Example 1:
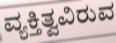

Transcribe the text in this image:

ವ್ಯಕ್ತಿತ್ವವಿರುವ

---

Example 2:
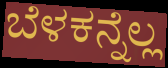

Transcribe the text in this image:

ಬೆಳಕನ್ನೆಲ್ಲ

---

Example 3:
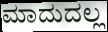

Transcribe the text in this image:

ಮಾದುದಲ್ಲ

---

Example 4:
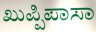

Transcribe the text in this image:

ಖುಪ್ಪಿಪಾಸಾ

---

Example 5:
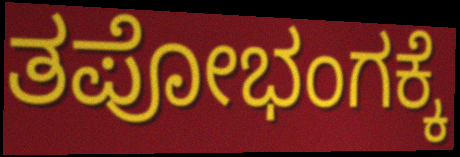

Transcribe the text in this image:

ತಪೋಭಂಗಕ್ಕೆ